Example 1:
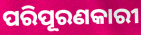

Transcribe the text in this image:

ପରିପୂରଣକାରୀ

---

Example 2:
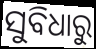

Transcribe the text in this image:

ସୁବିଧାରୁ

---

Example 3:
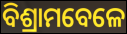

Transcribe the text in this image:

ବିଶ୍ରାମବେଳେ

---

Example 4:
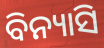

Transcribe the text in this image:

ବିନ୍ୟାସି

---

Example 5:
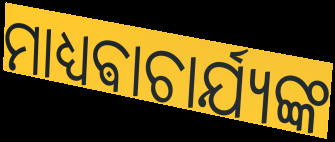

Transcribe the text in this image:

ମାଧ୍ୟଵାଚାର୍ଯ୍ୟଙ୍କ